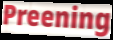
Preening